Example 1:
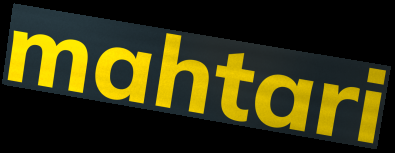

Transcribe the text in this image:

mahtari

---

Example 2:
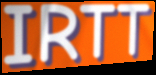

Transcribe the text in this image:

IRTT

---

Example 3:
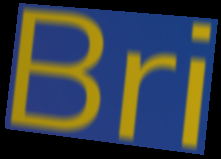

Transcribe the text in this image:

Bri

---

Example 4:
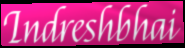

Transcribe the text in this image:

Indreshbhai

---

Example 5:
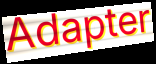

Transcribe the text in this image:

Adapter